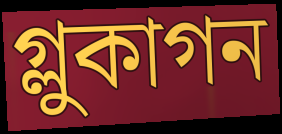
গ্লুকাগন